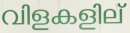
വിളകളില്